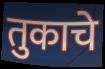
तुकाचे